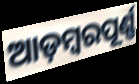
ଆଡ଼ମ୍ବରପୂର୍ଣ୍ଣ